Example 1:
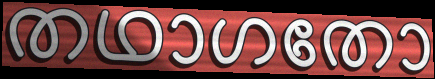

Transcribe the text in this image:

തഥാഗതോ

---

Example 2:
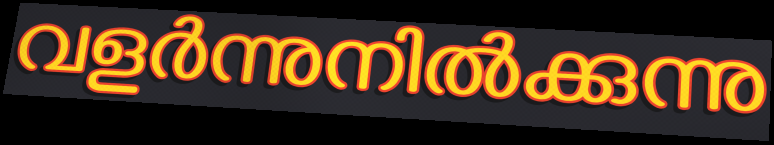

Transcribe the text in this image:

വളർന്നുനിൽക്കുന്നു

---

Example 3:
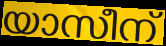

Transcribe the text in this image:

യാസീന്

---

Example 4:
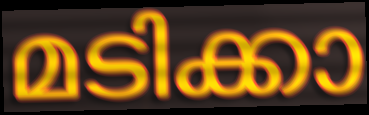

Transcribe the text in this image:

മടിക്കാ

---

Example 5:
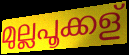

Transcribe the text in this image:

മുല്ലപൂക്കള്